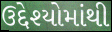
ઉદ્દેશ્યોમાંથી